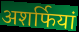
अशर्फियां